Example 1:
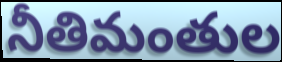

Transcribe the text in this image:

నీతిమంతుల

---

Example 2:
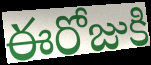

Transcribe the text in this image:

ఈరోజుకి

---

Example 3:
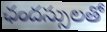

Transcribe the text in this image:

ఛందస్సులతో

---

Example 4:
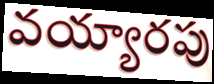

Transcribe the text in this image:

వయ్యారపు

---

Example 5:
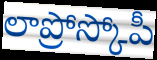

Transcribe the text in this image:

లాప్రోస్కోపీ